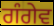
ਗੰਗੇਵ